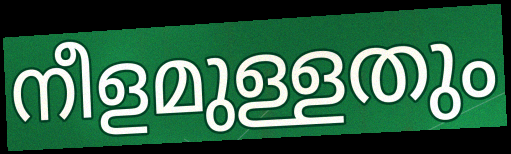
നീളമുള്ളതും